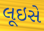
લૂઇસે